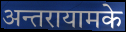
अन्तरायामके